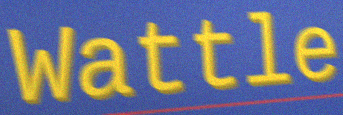
Wattle